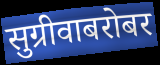
सुग्रीवाबरोबर